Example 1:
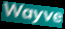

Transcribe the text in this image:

Wayve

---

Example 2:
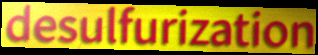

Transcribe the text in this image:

desulfurization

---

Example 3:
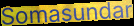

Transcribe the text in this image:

Somasundar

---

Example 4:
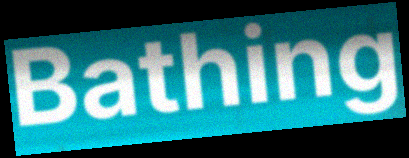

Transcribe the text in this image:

Bathing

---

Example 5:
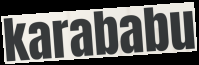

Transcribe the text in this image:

karababu